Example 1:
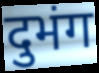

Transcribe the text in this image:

दुभंग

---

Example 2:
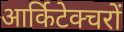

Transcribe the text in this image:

आर्किटेक्चरों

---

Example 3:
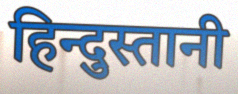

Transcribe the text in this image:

हिन्दुस्तानी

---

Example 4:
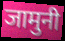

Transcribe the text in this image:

जामुनी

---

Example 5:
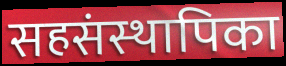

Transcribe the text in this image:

सहसंस्थापिका